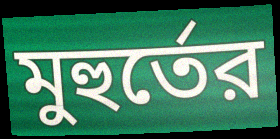
মুহুর্তের